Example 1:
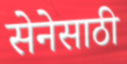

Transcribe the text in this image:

सेनेसाठी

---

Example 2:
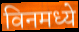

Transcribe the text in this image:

विनमध्ये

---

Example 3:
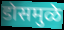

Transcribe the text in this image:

डोसमुळे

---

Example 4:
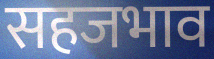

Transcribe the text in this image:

सहजभाव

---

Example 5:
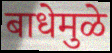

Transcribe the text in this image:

बाधेमुळे